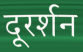
दूरर्शन